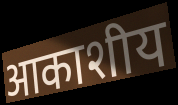
आकाशीय